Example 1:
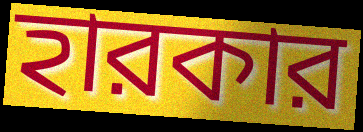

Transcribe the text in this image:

হারকার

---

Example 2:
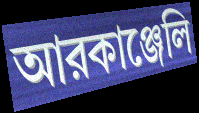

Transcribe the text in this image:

আরকাঞ্জেলি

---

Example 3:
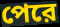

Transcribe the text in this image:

পেরে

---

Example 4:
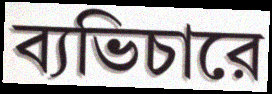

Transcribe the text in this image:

ব্যভিচারে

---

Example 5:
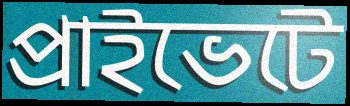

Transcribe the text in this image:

প্রাইভেটে